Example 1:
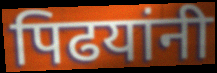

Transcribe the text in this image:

पिढयांनी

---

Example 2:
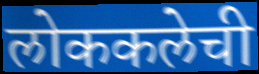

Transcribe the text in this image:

लोककलेची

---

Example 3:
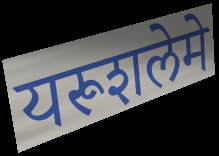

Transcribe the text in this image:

यरूशलेमे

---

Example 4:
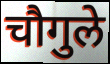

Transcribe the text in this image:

चौगुले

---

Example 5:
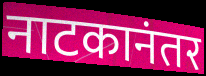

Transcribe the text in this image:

नाटकानंतर